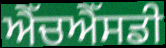
ਐੱਚਐੱਸਡੀ